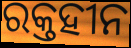
ରକ୍ତହୀନ